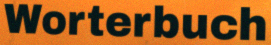
Worterbuch